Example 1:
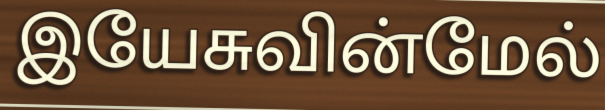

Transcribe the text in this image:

இயேசுவின்மேல்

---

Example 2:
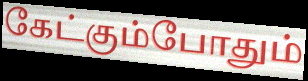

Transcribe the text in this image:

கேட்கும்போதும்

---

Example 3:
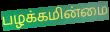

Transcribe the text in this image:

பழக்கமின்மை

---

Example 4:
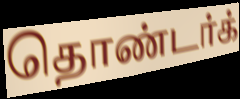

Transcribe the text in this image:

தொண்டர்க்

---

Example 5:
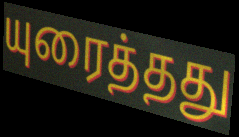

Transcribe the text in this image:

யுரைத்தது